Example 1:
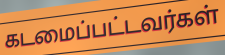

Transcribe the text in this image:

கடமைப்பட்டவர்கள்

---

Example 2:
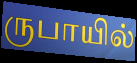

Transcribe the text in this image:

ருபாயில்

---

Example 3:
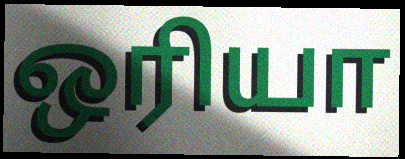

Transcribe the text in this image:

ஒரியா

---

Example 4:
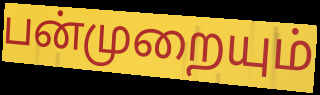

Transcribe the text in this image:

பன்முறையும்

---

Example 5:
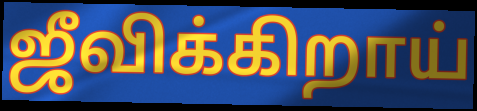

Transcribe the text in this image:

ஜீவிக்கிறாய்